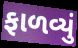
ફાળવ્યું